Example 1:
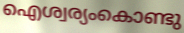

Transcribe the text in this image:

ഐശ്വര്യംകൊണ്ടു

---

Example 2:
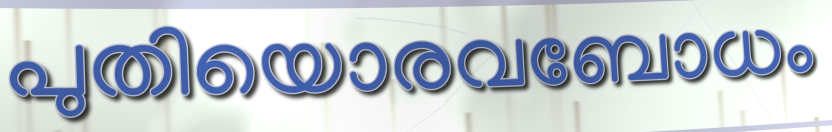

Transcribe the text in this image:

പുതിയൊരവബോധം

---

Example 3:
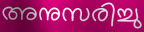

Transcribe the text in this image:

അനുസരിച്ചു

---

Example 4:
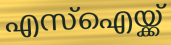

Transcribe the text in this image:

എസ്ഐയ്ക്ക്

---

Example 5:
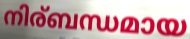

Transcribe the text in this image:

നിര്ബന്ധമായ